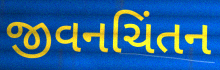
જીવનચિંતન